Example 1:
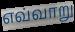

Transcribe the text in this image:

எவ்வாறு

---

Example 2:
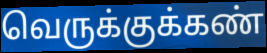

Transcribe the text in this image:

வெருக்குக்கண்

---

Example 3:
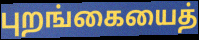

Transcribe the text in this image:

புறங்கையைத்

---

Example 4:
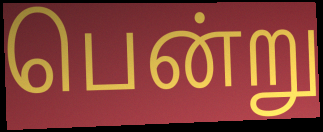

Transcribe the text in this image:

பென்று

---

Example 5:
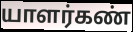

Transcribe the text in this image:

யாளர்கண்